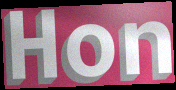
Hon